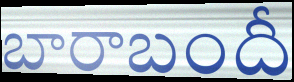
బారాబందీ